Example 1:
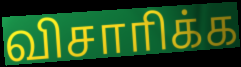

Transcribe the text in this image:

விசாரிக்க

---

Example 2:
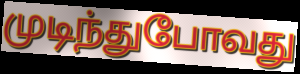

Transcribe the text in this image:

முடிந்துபோவது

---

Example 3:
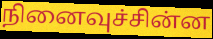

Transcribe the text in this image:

நினைவுச்சின்ன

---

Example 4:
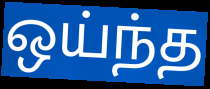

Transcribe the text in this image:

ஒய்ந்த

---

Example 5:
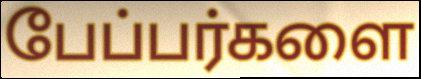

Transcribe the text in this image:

பேப்பர்களை